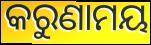
କରୁଣାମୟ